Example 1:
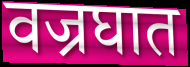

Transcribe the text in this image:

वज्रघात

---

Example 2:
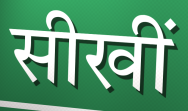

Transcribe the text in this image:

सीखीं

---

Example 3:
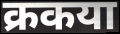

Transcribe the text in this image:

क्रकया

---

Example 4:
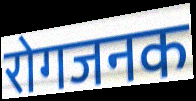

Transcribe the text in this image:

रोगजनक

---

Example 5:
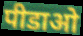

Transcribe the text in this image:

पीडाओ